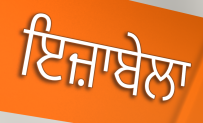
ਇਜ਼ਾਬੇਲਾ